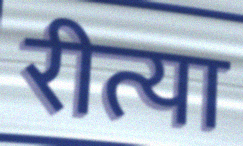
रीत्या